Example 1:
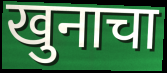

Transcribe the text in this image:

खुनाचा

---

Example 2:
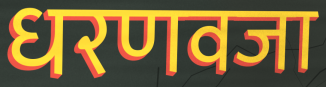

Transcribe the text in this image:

धरणवजा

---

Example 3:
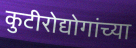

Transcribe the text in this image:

कुटीरोद्योगांच्या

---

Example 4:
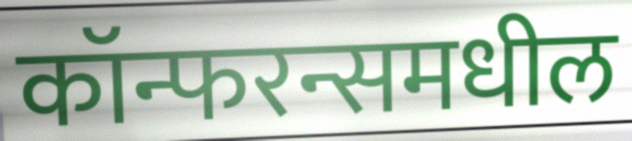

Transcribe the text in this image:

कॉन्फरन्समधील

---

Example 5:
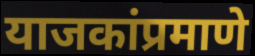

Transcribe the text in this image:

याजकांप्रमाणे